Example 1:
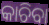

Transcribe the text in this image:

କାଚିବା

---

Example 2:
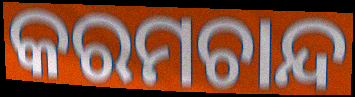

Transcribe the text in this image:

କରମଚାନ୍ଦ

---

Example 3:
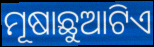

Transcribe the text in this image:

ମୂଷାଛୁଆଟିଏ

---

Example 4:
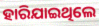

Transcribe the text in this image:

ହାରିଯାଇଥିଲେ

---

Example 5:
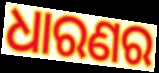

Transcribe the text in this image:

ଧାରଣର